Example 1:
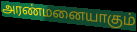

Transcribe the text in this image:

அரண்மனையாகும்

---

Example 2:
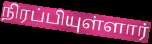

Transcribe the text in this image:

நிரப்பியுள்ளார்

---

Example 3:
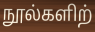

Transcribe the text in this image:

நூல்களிற்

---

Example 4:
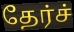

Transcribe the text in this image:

தேர்ச்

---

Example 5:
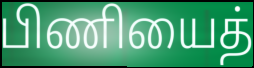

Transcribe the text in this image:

பிணியைத்